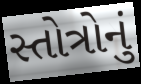
સ્તોત્રોનું